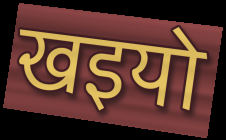
खइयो